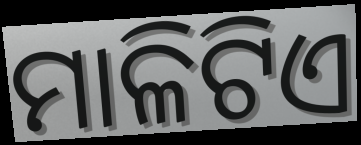
ମାଳିଟିଏ